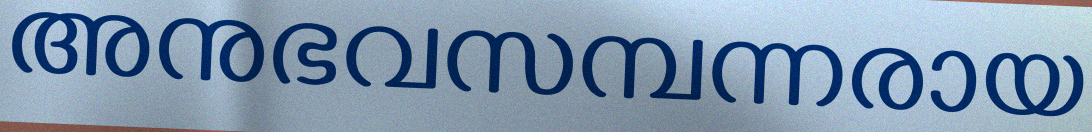
അനുഭവസമ്പന്നരായ